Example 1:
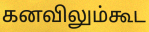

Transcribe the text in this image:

கனவிலும்கூட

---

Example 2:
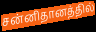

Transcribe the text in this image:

சன்னிதானத்தில்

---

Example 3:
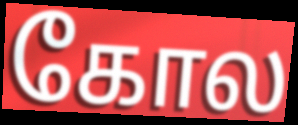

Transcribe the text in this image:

கோல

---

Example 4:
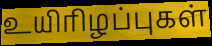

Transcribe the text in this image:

உயிரிழப்புகள்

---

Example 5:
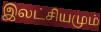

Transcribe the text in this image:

இலட்சியமும்